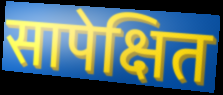
सापेक्षित